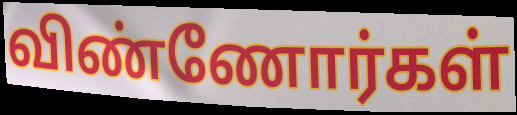
விண்ணோர்கள்